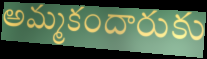
అమ్మకందారుకు